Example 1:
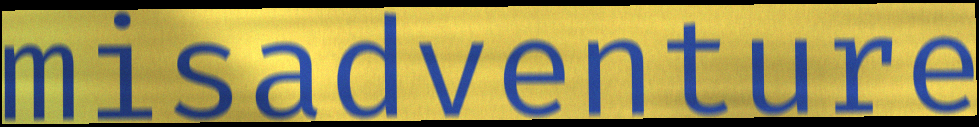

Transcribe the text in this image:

misadventure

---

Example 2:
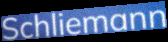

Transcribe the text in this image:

Schliemann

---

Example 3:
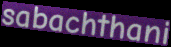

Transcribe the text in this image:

sabachthani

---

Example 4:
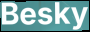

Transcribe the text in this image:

Besky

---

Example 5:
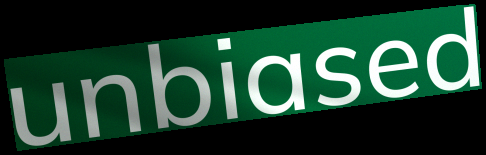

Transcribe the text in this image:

unbiased